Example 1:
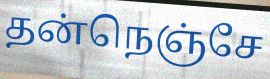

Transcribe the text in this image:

தன்நெஞ்சே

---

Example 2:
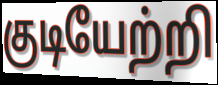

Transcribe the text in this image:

குடியேற்றி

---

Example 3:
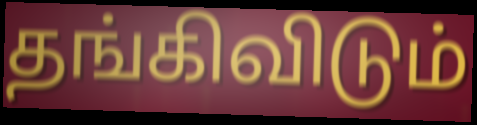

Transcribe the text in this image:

தங்கிவிடும்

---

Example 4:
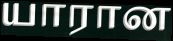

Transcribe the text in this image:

யாரான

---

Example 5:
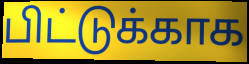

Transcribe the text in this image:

பிட்டுக்காக